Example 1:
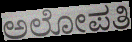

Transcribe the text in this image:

ಅಲೋಪತಿ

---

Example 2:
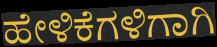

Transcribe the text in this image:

ಹೇಳಿಕೆಗಳಿಗಾಗಿ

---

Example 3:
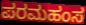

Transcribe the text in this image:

ಪರಮಹಂಸ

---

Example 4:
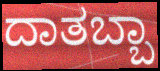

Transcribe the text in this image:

ದಾತಬ್ಬಾ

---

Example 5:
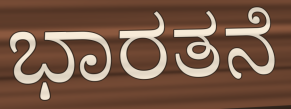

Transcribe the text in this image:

ಭಾರತನೆ